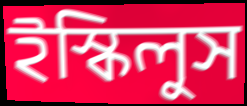
ইস্কিলুস